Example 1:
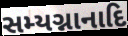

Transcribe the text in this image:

સમ્યગ્નાનાદિ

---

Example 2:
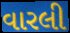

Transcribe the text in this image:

વારલી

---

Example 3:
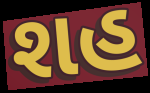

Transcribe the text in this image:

શહ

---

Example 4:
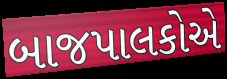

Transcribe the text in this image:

બાજપાલકોએ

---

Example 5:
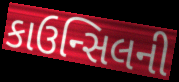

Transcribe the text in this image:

કાઉન્સિલની